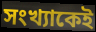
সংখ্যাকেই